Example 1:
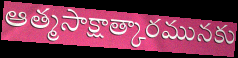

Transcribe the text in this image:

ఆత్మసాక్షాత్కారమునకు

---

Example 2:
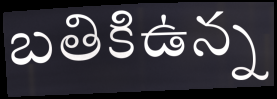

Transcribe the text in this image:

బతికిఉన్న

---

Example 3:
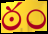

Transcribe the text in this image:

ఠం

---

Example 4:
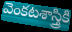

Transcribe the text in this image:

వెంకటశాస్త్రికి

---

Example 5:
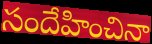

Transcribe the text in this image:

సందేహించినా